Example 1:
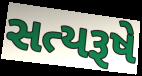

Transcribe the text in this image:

સત્યરૂષે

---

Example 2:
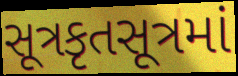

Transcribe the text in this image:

સૂત્રકૃતસૂત્રમાં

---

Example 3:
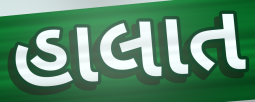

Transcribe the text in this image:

હાલાત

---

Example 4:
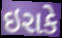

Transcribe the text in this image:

ઇરાકે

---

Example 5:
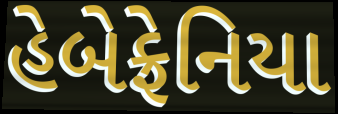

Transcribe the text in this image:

હેબેફ્રેનિયા